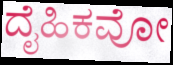
ದೈಹಿಕವೋ